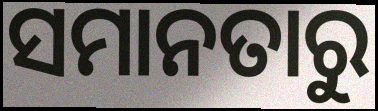
ସମାନତାରୁ